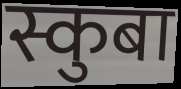
स्कुबा